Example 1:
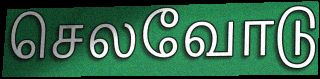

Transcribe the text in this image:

செலவோடு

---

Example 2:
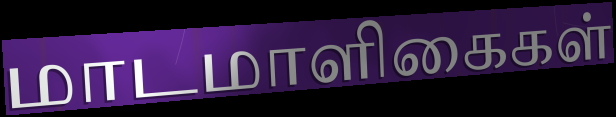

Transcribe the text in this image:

மாடமாளிகைகள்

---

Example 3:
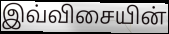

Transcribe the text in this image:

இவ்விசையின்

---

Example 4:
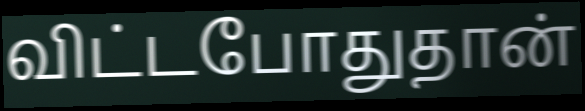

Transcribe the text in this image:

விட்டபோதுதான்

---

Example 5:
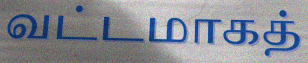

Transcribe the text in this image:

வட்டமாகத்